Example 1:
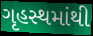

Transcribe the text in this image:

ગૃહસ્થમાંથી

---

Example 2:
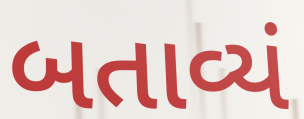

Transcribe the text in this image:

બતાવ્યં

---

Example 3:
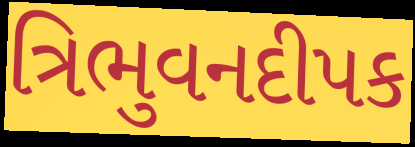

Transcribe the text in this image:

ત્રિભુવનદીપક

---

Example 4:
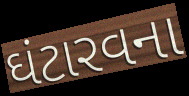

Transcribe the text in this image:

ઘંટારવના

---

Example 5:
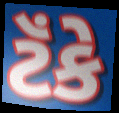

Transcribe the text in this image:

ટૅંકે